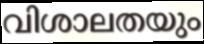
വിശാലതയും